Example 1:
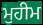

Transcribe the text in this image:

ਮੁਹੀਮ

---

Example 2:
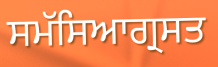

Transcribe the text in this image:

ਸਮੱਸਿਆਗ੍ਰਸਤ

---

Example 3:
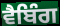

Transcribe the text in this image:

ਵੈਬਿੰਗ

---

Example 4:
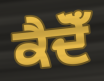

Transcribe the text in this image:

ਕੈਦੋਁ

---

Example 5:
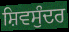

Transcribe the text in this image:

ਸ਼ਿਵਸੁੰਦਰ